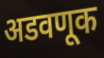
अडवणूक